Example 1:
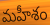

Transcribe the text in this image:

మహీశం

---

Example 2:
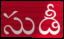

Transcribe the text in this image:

సుడీ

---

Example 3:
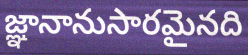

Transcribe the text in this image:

జ్ఞానానుసారమైనది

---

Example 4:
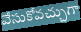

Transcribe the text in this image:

వేసుకోవచ్చుగా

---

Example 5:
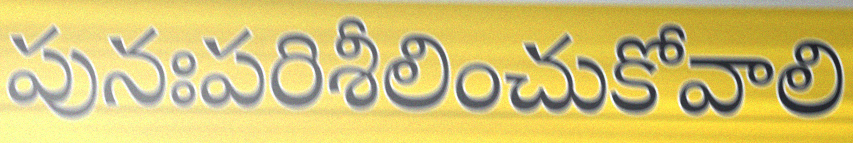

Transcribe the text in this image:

పునఃపరిశీలించుకోవాలి